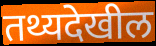
तथ्यदेखील